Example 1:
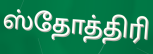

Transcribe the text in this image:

ஸ்தோத்திரி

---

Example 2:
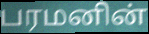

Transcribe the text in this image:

பரமனின்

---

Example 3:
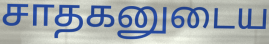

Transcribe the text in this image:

சாதகனுடைய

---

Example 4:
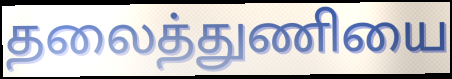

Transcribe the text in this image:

தலைத்துணியை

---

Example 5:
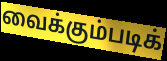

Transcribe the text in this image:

வைக்கும்படிக்